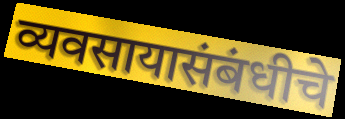
व्यवसायासंबंधीचे